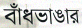
বাঁধভাঙার